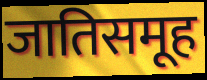
जातिसमूह